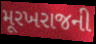
મૂરખરાજની